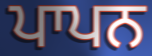
ਪਾਪਨ